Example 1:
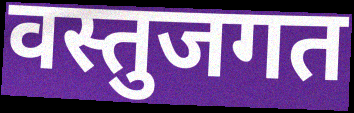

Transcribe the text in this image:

वस्तुजगत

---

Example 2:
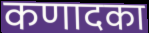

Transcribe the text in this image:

कणादका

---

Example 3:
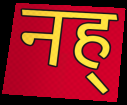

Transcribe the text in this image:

नह्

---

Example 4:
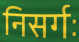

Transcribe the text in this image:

निसर्गः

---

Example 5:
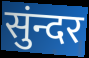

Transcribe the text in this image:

सुंन्दर